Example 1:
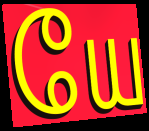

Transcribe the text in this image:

யே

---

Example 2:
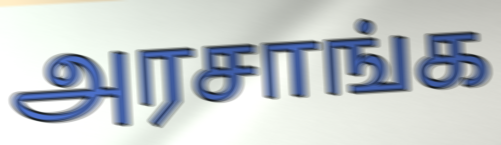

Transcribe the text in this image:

அரசாங்க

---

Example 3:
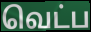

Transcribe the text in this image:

வெட்ப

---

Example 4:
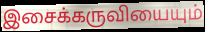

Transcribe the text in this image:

இசைக்கருவியையும்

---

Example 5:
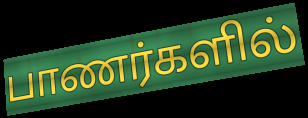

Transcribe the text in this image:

பாணர்களில்